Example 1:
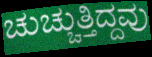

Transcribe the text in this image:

ಚುಚ್ಚುತ್ತಿದ್ದವು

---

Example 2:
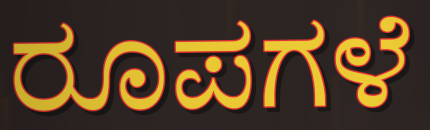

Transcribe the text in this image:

ರೂಪಗಳೆ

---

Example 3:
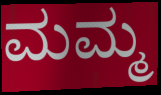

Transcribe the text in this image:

ಮಮ್ಮ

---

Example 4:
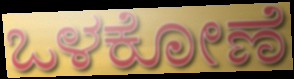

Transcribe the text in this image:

ಒಳಕೋಣೆ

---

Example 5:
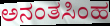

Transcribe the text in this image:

ಅನಂತಸಿಂಹ